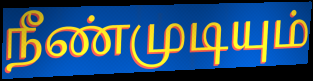
நீண்முடியும்